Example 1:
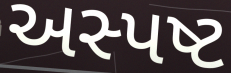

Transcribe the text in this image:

અસ્પષ્ટ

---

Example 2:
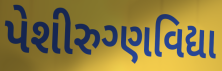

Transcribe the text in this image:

પેશીરુગ્ણવિદ્યા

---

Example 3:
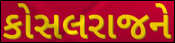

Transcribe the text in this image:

કોસલરાજને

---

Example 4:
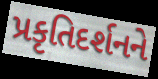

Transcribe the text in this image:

પ્રકૃતિદર્શનને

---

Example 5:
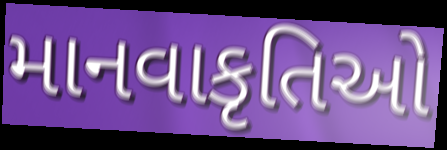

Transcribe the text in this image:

માનવાકૃતિઓ